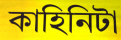
কাহিনিটা